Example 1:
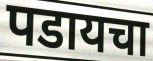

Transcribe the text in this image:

पडायचा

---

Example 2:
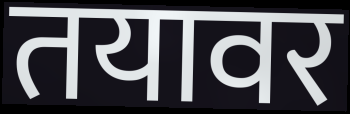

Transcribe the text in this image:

तयावर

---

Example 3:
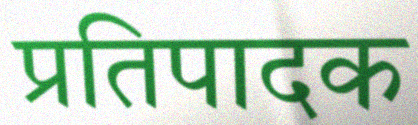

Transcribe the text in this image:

प्रतिपादक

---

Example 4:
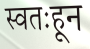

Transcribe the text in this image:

स्वतःहून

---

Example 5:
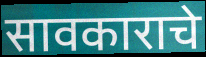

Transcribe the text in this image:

सावकाराचे